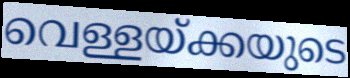
വെള്ളയ്ക്കയുടെ